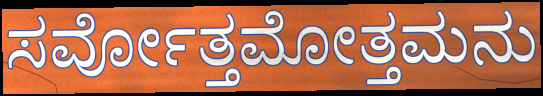
ಸರ್ವೋತ್ತಮೋತ್ತಮನು